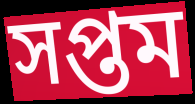
সপ্তম